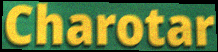
Charotar